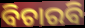
ବିଚାରବି